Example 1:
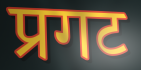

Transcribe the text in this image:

प्रगट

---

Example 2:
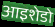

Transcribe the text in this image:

आइशेडो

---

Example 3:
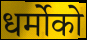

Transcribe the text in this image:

धर्मोको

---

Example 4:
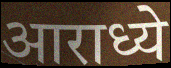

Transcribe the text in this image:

आराध्ये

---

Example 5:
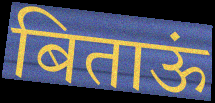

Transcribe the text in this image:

बिताऊं